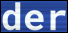
der